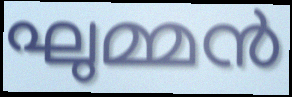
ഘുമ്മൻ